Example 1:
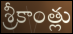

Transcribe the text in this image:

శ్రీకాంత్లు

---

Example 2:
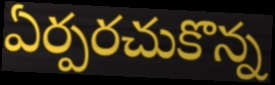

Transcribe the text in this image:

ఏర్పరచుకొన్న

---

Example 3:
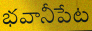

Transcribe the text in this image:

భవానీపేట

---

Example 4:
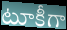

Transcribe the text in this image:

టూకీగా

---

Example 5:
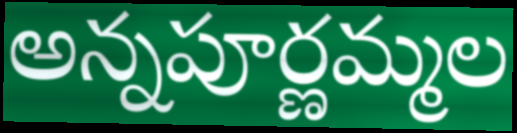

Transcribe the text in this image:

అన్నపూర్ణమ్మల